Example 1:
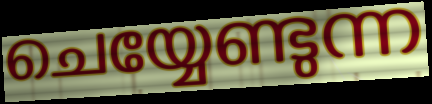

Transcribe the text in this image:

ചെയ്യേണ്ടുന്ന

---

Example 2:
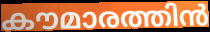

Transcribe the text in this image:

കൗമാരത്തിൻ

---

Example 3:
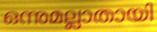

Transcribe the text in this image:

ഒന്നുമല്ലാതായി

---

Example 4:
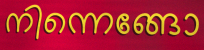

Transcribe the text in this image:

നിന്നെങ്ങോ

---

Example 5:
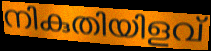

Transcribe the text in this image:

നികുതിയിളവ്